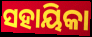
ସହାୟିକା